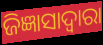
ଜିଜ୍ଞାସାଦ୍ୱାରା